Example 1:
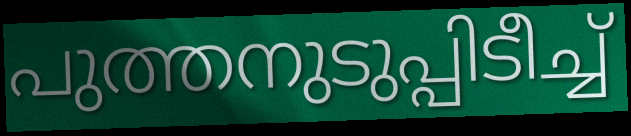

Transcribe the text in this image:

പുത്തനുടുപ്പിടീച്ച്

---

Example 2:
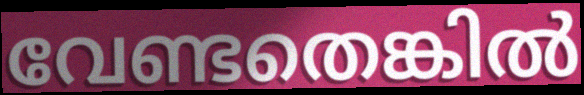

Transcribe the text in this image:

വേണ്ടതെങ്കിൽ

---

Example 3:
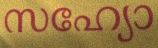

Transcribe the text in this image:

സഹ്യോ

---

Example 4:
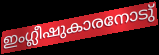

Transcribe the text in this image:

ഇംഗ്ലീഷുകാരനോടു്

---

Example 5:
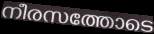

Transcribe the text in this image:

നീരസത്തോടെ